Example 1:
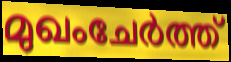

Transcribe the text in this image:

മുഖംചേർത്ത്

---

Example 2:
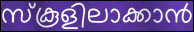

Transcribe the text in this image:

സ്കൂളിലാക്കാൻ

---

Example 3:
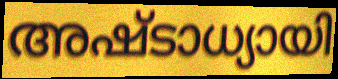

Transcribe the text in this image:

അഷ്ടാധ്യായി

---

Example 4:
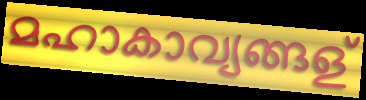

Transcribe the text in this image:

മഹാകാവ്യങ്ങള്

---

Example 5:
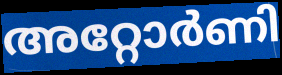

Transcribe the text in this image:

അറ്റോർണി